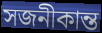
সজনীকান্ত